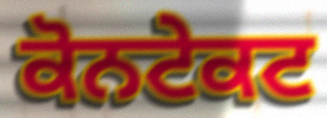
ਕੋਨਟੇਕਟ